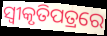
ସ୍ୱୀକୃତିପତ୍ରରେ